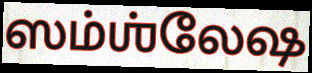
ஸம்ஶ்லேஷ